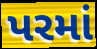
પરમાં